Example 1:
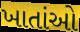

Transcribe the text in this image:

ખાતાંઓ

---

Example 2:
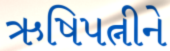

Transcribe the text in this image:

ઋષિપત્નીને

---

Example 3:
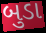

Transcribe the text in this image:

બુડા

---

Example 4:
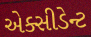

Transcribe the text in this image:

એક્સીડેન્ટ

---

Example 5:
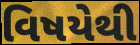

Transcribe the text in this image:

વિષયેથી